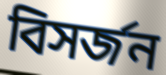
বিসৰ্জন